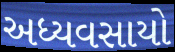
અધ્યવસાયો